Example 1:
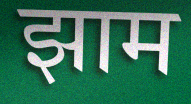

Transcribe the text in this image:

झाम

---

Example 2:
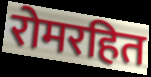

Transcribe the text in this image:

रोमरहित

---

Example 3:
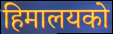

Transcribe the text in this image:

हिमालयको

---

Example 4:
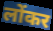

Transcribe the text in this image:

लोंकर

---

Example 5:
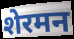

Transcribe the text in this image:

शेरमन